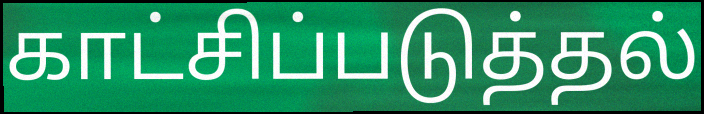
காட்சிப்படுத்தல்